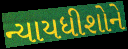
ન્યાયધીશોને